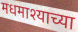
मधमाश्याच्या